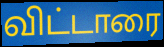
விட்டாரை